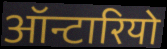
ऑन्टारियो